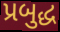
પ્રબુદ્ધ